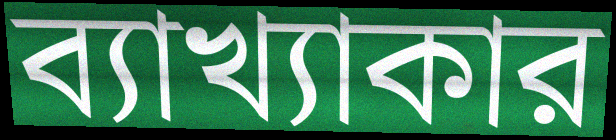
ব্যাখ্যাকার